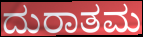
ದುರಾತಮ